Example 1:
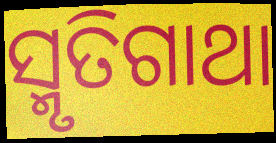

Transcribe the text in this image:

ସ୍ମୃତିଗାଥା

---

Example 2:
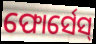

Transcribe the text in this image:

ଫୋର୍ସେସ୍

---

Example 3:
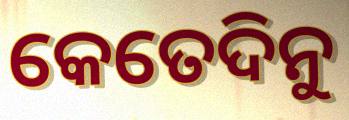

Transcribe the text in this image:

କେତେଦିନୁ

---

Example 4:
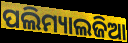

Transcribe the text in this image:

ପଲିମ୍ୟାଲଜିଆ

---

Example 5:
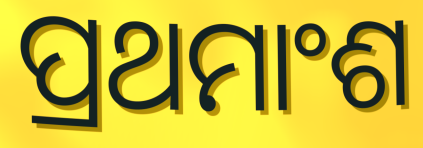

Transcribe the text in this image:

ପ୍ରଥମାଂଶ